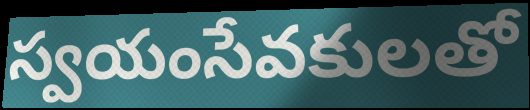
స్వయంసేవకులతో